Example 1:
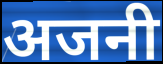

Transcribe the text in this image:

अजनी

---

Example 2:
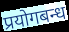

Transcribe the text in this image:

प्रयोगबन्ध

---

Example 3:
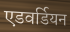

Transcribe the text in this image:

एडवर्डियन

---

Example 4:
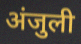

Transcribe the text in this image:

अंजुली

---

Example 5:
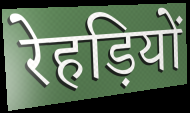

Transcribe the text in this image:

रेहड़ियों